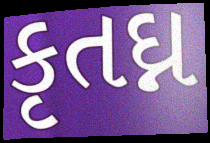
કૃતઘ્ન